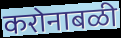
करोनाबळी